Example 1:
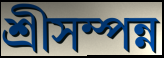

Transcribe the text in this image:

শ্রীসম্পন্ন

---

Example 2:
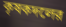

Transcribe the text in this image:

কৃষকদলের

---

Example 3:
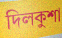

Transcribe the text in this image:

দিলকুশা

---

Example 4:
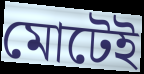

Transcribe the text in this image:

মোটেই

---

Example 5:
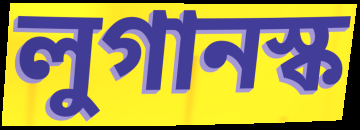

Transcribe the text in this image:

লুগানস্ক